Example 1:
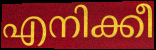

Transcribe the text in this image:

എനിക്കീ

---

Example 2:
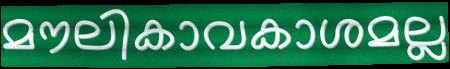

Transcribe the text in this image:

മൗലികാവകാശമല്ല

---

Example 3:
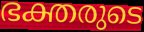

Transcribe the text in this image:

ഭക്തരുടെ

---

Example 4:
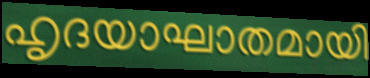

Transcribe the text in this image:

ഹൃദയാഘാതമായി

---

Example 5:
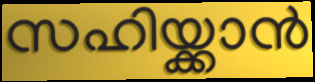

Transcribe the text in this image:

സഹിയ്ക്കാൻ